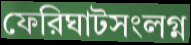
ফেরিঘাটসংলগ্ন